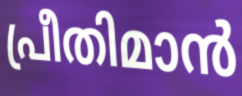
പ്രീതിമാൻ